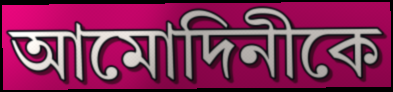
আমোদিনীকে